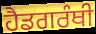
ਹੈਡਗਰੰਥੀ